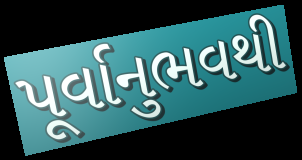
પૂર્વાનુભવથી